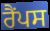
ਰੈਂਪਸ